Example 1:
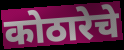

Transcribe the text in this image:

कोठारेचे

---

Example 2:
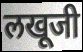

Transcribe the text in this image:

लखूजी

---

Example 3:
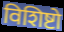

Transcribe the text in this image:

विशिष्टो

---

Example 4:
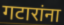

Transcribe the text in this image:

गटारांना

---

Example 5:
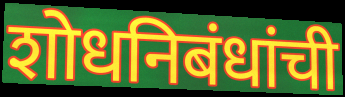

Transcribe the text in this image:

शोधनिबंधांची